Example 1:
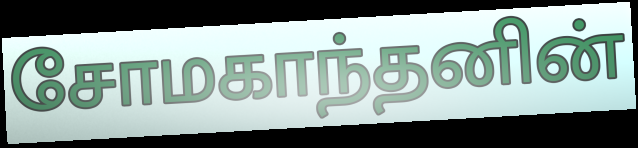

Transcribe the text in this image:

சோமகாந்தனின்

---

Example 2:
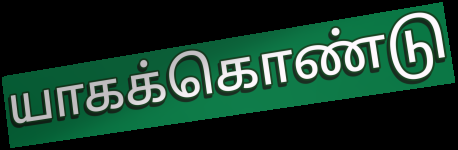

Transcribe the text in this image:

யாகக்கொண்டு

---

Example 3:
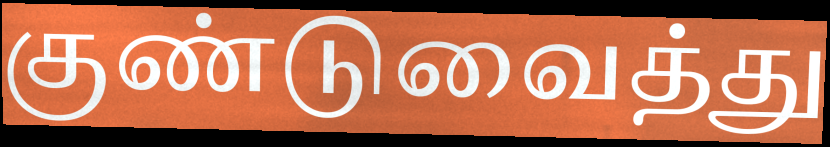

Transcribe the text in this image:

குண்டுவைத்து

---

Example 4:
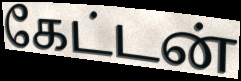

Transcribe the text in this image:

கேட்டன்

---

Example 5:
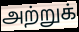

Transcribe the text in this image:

அற்றுக்